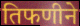
तिफणीने